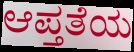
ಆಪ್ತತೆಯ